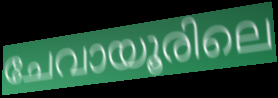
ചേവായൂരിലെ